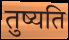
तुष्यति